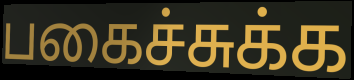
பகைச்சுக்க